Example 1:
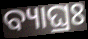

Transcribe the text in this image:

ବ୍ୟାଘ୍ରଃ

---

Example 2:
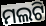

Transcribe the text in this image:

ମଲଟି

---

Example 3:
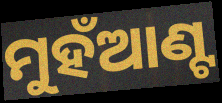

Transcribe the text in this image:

ମୁହଁଆଣ୍ଟ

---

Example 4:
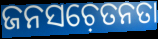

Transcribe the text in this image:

ଜନସଚ଼େତନତା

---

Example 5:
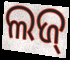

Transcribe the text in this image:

ଲଜ୍